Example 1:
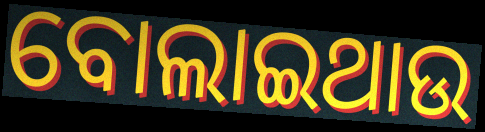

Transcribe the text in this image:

ବୋଲାଇଥାଉ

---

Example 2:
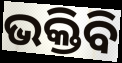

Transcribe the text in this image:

ଭକ୍ତିବି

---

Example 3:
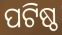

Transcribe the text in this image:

ପଟିଷ୍ଠ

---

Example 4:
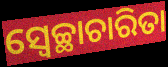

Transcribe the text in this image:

ସ୍ୱେଚ୍ଛାଚାରିତା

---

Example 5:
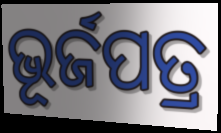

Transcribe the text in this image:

ଭୂର୍ଜପତ୍ର